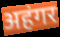
अहंगर